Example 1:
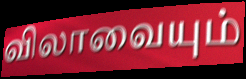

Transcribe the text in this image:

விலாவையும்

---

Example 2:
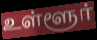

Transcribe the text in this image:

உள்ளூர்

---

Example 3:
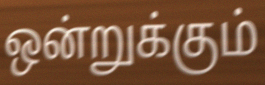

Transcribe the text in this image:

ஒன்றுக்கும்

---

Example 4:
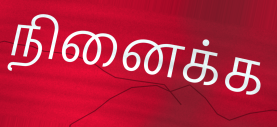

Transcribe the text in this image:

நினைக்க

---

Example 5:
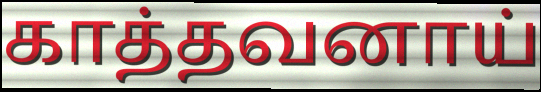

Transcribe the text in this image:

காத்தவனாய்